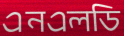
এনএলডি